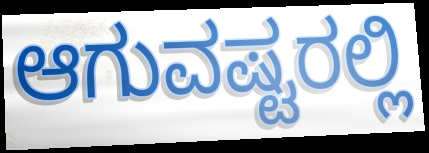
ಆಗುವಷ್ಟರಲ್ಲಿ